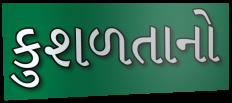
કુશળતાનો